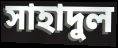
সাহাদুল